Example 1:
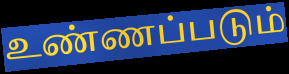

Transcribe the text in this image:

உண்ணப்படும்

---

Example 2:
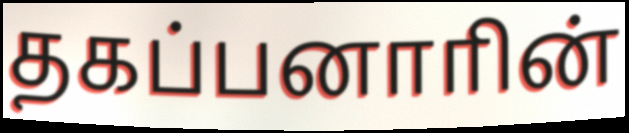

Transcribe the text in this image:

தகப்பனாரின்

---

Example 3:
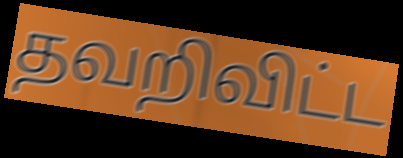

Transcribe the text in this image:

தவறிவிட்ட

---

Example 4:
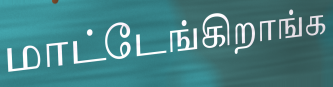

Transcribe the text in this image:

மாட்டேங்கிறாங்க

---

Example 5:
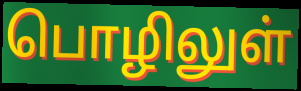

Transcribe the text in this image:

பொழிலுள்